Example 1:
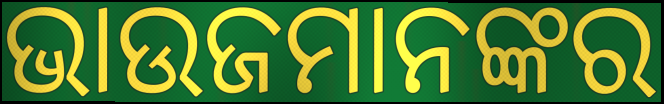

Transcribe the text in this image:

ଭାଉଜମାନଙ୍କର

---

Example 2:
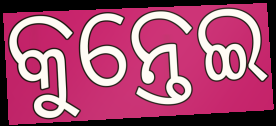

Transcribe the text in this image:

କୁନ୍ତେଇ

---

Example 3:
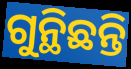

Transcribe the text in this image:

ଗୁନ୍ଥିଛନ୍ତି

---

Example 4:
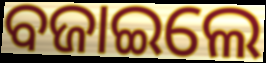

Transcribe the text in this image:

ବଜାଇଲେ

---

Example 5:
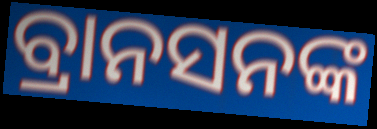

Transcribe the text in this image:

ବ୍ରାନସନଙ୍କ